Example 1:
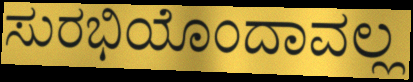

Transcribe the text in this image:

ಸುರಭಿಯೊಂದಾವಲ್ಲ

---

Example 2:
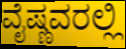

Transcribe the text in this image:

ವೈಷ್ಣವರಲ್ಲಿ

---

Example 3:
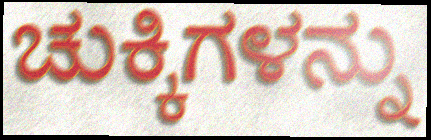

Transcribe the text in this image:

ಚುಕ್ಕಿಗಳನ್ನು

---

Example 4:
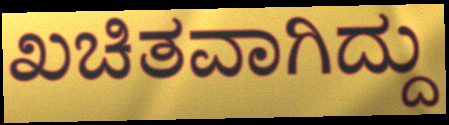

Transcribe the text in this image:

ಖಚಿತವಾಗಿದ್ದು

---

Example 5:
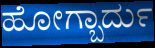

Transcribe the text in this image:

ಹೋಗ್ಬಾರ್ದು